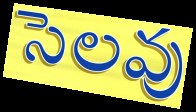
సెలవు